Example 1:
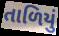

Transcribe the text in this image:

તાળિયું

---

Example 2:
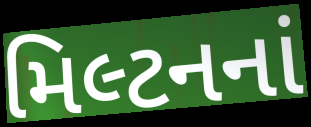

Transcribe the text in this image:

મિલ્ટનનાં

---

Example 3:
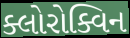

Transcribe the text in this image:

ક્લોરોક્વિન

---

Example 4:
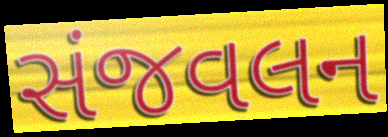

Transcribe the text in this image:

સંજવલન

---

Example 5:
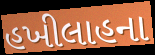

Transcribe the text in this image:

હખીલાહના